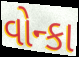
વોન્કા